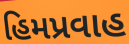
હિમપ્રવાહ